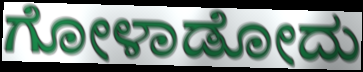
ಗೋಳಾಡೋದು